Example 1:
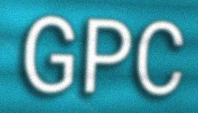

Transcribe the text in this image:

GPC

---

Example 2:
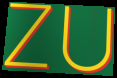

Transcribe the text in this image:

ZU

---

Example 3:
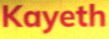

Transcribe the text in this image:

Kayeth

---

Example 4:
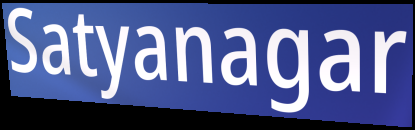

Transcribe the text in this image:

Satyanagar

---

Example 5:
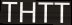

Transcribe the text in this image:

THTT